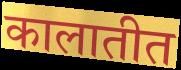
कालातीत